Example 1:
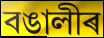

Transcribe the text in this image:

বঙালীৰ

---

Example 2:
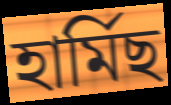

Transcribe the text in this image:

হাৰ্মিছ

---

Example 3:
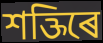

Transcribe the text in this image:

শক্তিৰে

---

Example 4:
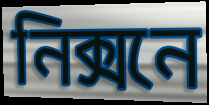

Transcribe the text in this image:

নিক্সনে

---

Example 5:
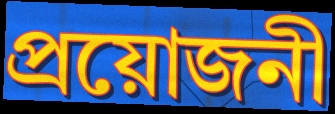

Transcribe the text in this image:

প্ৰয়োজনী